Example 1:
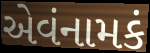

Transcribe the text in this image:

એવંનામકં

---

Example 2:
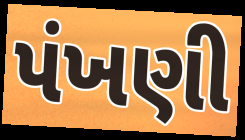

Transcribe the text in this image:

પંખણી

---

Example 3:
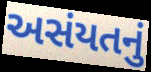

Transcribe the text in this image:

અસંયતનું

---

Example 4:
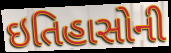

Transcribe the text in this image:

ઇતિહાસોની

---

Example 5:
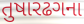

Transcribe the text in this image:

તુષારઢગના